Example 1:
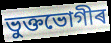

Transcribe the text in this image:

ভুক্তভোগীৰ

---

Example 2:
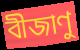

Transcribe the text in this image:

বীজাণু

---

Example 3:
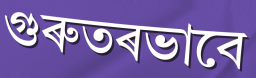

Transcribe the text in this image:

গুৰুতৰভাবে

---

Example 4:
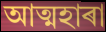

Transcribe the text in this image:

আত্মহাৰা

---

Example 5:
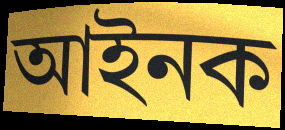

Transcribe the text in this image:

আইনক